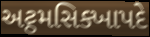
અટ્ઠમસિક્ખાપદે